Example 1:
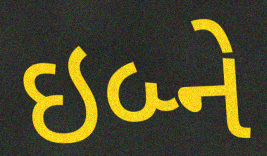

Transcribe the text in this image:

ઇબ્ને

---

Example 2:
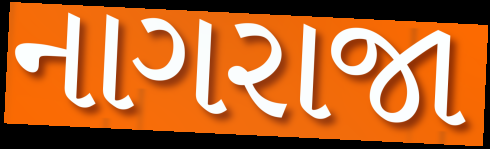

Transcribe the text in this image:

નાગરાજા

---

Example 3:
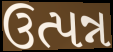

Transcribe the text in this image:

ઉત્પન્ન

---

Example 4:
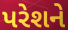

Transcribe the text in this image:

પરેશને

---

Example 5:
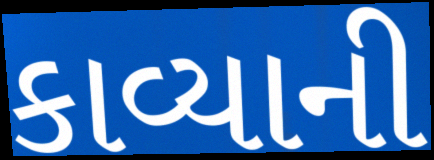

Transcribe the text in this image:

કાવ્યાની